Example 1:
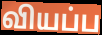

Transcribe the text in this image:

வியப்ப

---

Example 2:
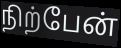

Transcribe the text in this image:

நிற்பேன்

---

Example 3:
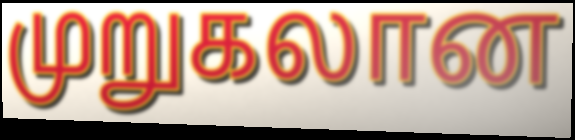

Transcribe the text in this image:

முறுகலான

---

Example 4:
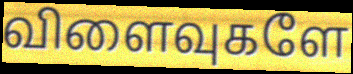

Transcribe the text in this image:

விளைவுகளே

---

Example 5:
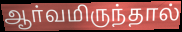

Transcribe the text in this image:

ஆர்வமிருந்தால்